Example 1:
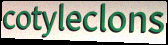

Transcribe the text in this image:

cotyleclons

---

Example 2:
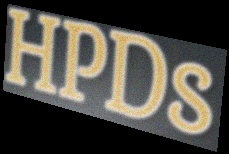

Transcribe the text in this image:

HPDs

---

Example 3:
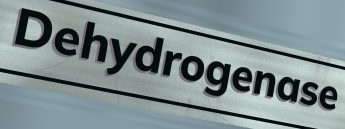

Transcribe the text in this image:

Dehydrogenase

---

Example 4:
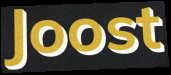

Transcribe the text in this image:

Joost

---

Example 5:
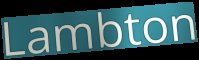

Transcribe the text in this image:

Lambton